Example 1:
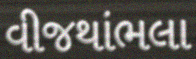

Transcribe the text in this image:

વીજથાંભલા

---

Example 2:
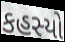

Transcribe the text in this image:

કહસ્યો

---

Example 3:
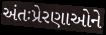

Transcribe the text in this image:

અંતઃપ્રેરણાઓને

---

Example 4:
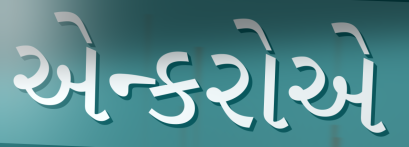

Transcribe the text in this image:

એન્કરોએ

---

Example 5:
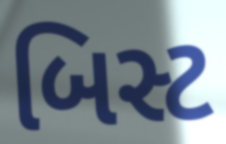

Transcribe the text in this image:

બિસ્ટ